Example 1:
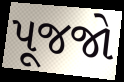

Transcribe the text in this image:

પૂજજો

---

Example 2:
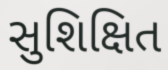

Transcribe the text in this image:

સુશિક્ષિત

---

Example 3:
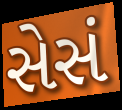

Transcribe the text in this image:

સેસં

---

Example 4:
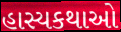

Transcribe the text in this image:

હાસ્યકથાઓ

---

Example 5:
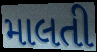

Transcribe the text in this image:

માલતી